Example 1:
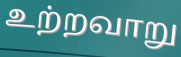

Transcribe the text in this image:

உற்றவாறு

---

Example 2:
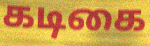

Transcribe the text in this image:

கடிகை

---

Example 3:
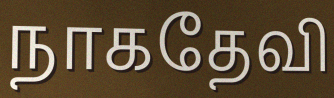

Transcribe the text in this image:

நாகதேவி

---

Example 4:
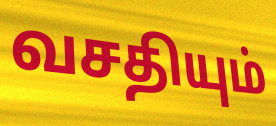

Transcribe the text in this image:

வசதியும்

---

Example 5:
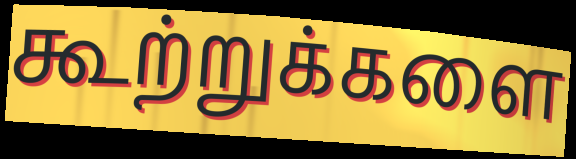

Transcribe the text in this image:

கூற்றுக்களை